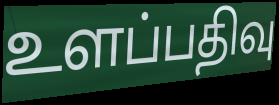
உளப்பதிவு